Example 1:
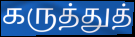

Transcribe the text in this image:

கருத்துத்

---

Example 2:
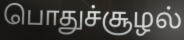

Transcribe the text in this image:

பொதுச்சூழல்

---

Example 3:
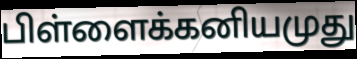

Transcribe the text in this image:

பிள்ளைக்கனியமுது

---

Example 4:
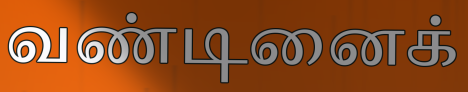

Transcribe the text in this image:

வண்டினைக்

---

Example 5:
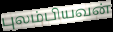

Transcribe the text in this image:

புலம்பியவன்